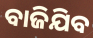
ବାଜିଯିବ